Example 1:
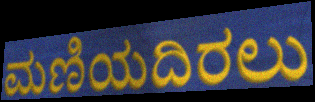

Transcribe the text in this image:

ಮಣಿಯದಿರಲು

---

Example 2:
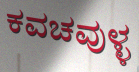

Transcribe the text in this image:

ಕವಚವುಳ್ಳ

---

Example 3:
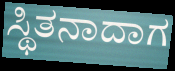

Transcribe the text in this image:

ಸ್ಥಿತನಾದಾಗ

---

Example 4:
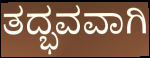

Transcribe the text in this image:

ತದ್ಭವವಾಗಿ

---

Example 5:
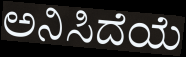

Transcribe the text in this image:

ಅನಿಸಿದೆಯೆ